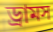
ড্রামস